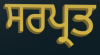
ਸਰਪ੍ਰਤ